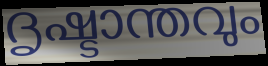
ദൃഷ്ടാന്തവും